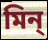
মিন্